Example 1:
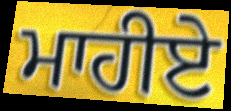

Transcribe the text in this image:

ਮਾਹੀਏ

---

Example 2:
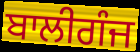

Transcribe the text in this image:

ਬਾਲੀਗੰਜ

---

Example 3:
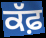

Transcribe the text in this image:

ਕੱਫ਼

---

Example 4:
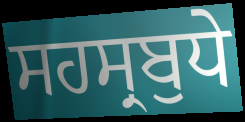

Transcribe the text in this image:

ਸਹਸ੍ਰਬੁਧੇ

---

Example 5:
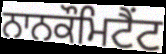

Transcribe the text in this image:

ਨਾਨਕੌਮਿਟੈਂਟ